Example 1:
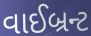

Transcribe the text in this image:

વાઈબ્રન્ટ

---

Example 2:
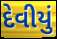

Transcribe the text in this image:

દેવીયું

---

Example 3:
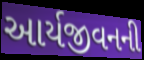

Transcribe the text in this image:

આર્યજીવનની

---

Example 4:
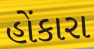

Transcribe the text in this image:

હોંકારા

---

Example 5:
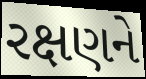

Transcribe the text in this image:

રક્ષણને